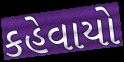
કહેવાયો